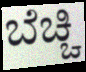
ಬೆಚ್ಚಿ